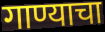
गाण्याचा